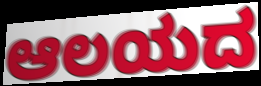
ಆಲಯದ